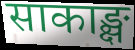
साकाङ्क्ष